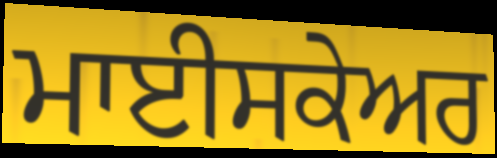
ਮਾਈਸਕੇਅਰ